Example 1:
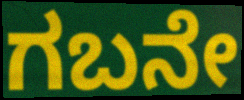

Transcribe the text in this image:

ಗಬನೇ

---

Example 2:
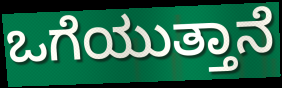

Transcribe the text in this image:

ಒಗೆಯುತ್ತಾನೆ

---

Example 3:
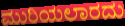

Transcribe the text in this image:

ಮುರಿಯಲಾರದು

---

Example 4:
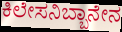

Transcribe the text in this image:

ಕಿಲೇಸನಿಬ್ಬಾನೇನ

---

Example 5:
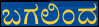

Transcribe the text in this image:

ಬಗಲಿಂದ